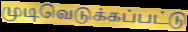
முடிவெடுக்கப்பட்டு